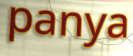
panya